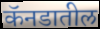
कॅनडातील